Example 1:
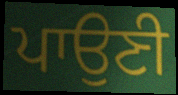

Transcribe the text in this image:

ਪਾਉਣੀ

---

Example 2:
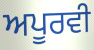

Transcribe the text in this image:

ਅਪੂਰਵੀ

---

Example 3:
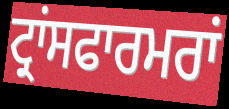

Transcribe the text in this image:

ਟ੍ਰਾਂਸਫਾਰਮਰਾਂ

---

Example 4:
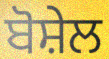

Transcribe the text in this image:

ਬੋਸ਼ੇਲ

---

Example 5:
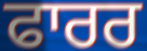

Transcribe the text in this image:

ਫਾਰਰ